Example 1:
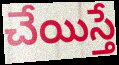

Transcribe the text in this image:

చేయిస్తే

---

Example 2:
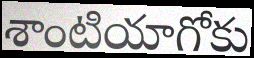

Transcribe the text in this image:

శాంటియాగోకు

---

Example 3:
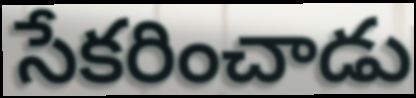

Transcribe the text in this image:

సేకరించాడు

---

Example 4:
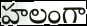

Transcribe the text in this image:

హలంగా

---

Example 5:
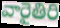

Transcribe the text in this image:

వారైతిరి